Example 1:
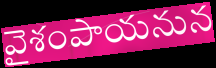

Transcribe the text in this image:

వైశంపాయనున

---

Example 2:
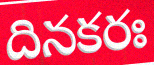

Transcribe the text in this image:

దినకరః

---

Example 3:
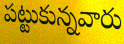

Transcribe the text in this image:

పట్టుకున్నవారు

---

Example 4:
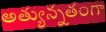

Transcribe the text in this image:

అత్యున్నతంగా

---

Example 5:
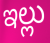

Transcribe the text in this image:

ఇల్లు